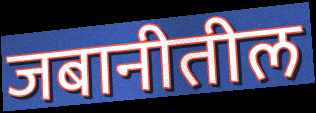
जबानीतील